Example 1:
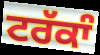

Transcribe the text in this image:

ਟਰੱਕਾੰ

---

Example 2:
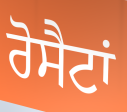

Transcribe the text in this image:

ਰੋਸੈਟਾਂ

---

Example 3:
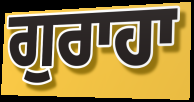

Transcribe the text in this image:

ਗੁਰਾਹਾ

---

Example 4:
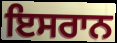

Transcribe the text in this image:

ਇਸਰਾਨ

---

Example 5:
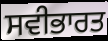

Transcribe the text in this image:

ਸਵੀਭਾਰਤ